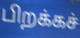
பிறக்கச்